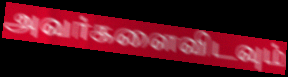
அவர்களைவிடவும்